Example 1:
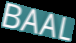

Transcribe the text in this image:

BAAL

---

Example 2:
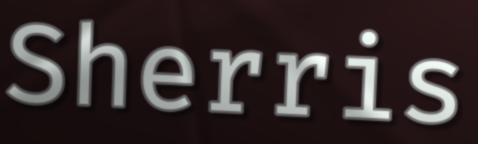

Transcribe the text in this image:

Sherris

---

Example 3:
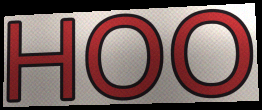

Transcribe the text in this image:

HOO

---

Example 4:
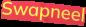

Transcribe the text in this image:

Swapneel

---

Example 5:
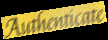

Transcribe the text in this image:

Authenticate